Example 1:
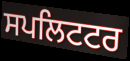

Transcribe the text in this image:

ਸਪਲਿਟਟਰ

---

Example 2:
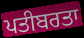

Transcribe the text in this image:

ਪਤੀਬਰਤਾ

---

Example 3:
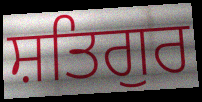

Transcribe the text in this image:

ਸ਼ਤਿਗੁਰ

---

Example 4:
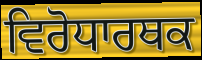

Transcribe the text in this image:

ਵਿਰੋਧਾਰਥਕ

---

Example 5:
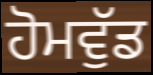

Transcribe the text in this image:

ਹੋਮਵੁੱਡ